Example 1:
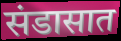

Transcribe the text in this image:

संडासात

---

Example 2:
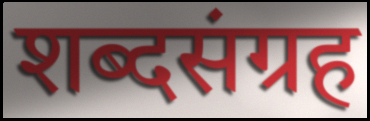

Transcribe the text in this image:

शब्दसंग्रह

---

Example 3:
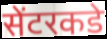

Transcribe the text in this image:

सेंटरकडे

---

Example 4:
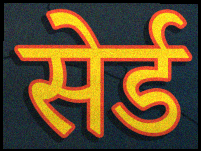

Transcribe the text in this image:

सेर्ड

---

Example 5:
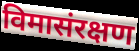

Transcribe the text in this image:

विमासंरक्षण